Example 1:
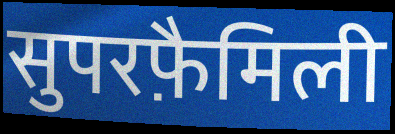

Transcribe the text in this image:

सुपरफ़ैमिली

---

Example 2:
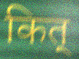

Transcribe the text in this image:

कित्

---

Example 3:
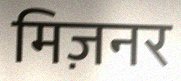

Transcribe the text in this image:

मिज़नर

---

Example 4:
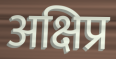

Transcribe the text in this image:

अक्षिप्र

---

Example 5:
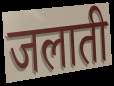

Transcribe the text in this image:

जलाती